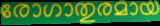
രോഗാതുരമായ